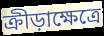
ক্রীড়াক্ষেত্রে